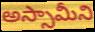
అస్సామీని